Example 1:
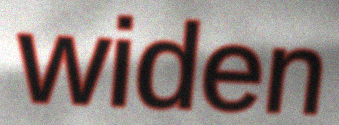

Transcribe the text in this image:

widen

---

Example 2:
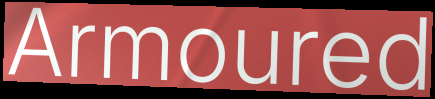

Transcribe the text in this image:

Armoured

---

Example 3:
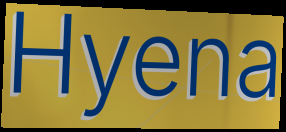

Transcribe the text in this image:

Hyena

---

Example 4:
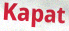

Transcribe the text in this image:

Kapat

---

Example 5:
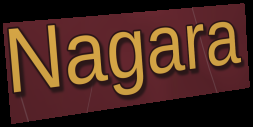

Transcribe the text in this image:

Nagara